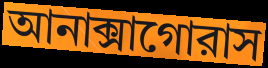
আনাক্সাগোরাস